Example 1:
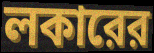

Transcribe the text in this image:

লকারের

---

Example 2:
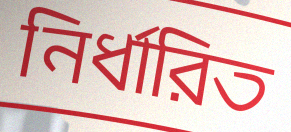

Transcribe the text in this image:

নির্ধারিত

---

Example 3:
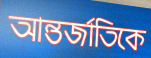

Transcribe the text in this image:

আন্তর্জাতিকে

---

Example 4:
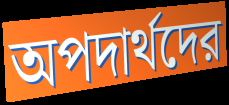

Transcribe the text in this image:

অপদার্থদের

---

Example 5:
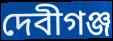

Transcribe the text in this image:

দেবীগঞ্জ